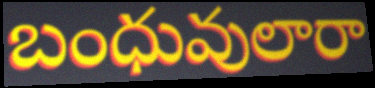
బంధువులారా